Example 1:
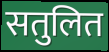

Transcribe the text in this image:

सतुलित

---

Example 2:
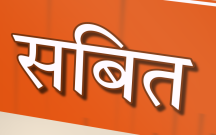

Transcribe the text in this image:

सबित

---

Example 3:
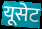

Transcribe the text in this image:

यूसेट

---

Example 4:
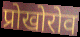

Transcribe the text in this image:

प्रोखोरोव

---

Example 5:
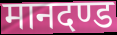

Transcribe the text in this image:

मानदण्ड